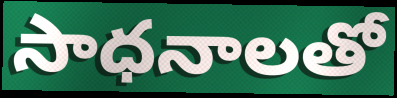
సాధనాలతో